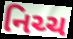
નિચ્ચ